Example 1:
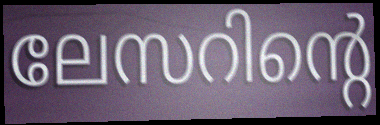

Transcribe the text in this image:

ലേസറിന്റെ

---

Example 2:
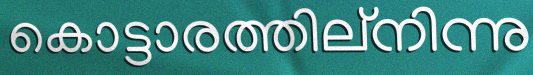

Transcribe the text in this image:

കൊട്ടാരത്തില്നിന്നു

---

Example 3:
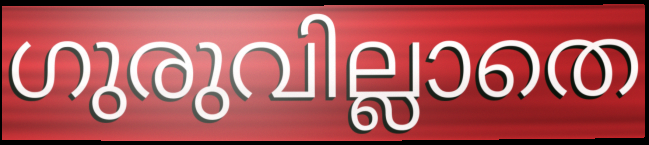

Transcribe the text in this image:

ഗുരുവില്ലാതെ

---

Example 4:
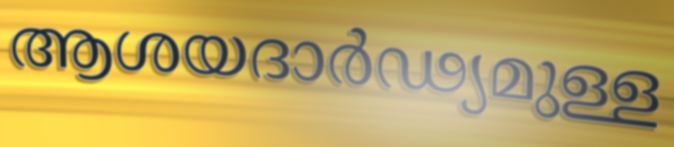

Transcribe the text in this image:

ആശയദാർഢ്യമുള്ള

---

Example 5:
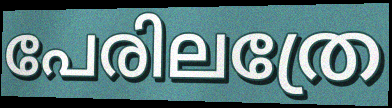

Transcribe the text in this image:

പേരിലത്രേ